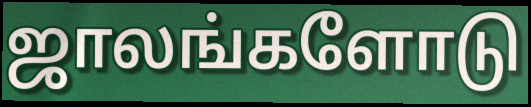
ஜாலங்களோடு